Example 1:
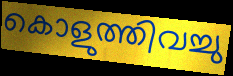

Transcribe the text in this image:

കൊളുത്തിവച്ചു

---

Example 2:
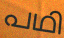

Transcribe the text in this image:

പഥി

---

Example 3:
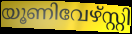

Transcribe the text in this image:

യൂണിവേഴ്സ്റ്റി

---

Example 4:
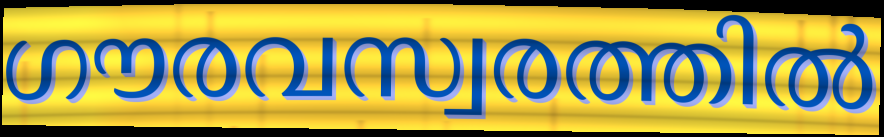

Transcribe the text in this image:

ഗൗരവസ്വരത്തിൽ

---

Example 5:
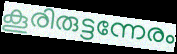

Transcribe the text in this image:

കൂരിരുട്ടന്നേരം